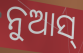
ନୁଆସ୍